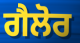
ਗੈਲੋਰ